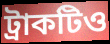
ট্রাকটিও